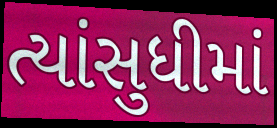
ત્યાંસુધીમાં